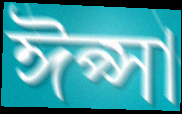
ঈপ্সা